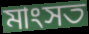
মাংসত